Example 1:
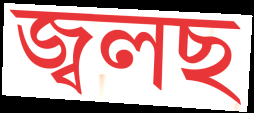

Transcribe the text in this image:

জ্বলছ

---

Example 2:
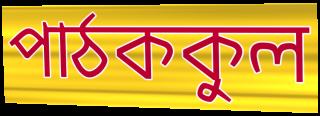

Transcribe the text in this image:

পাঠককুল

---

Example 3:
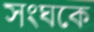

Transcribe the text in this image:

সংঘকে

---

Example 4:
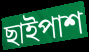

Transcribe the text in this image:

ছাইপাশ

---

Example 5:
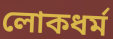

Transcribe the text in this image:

লোকধর্ম